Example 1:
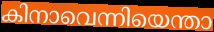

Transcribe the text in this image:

കിനാവെന്നിയെന്താ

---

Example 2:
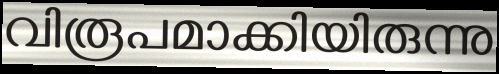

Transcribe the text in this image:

വിരൂപമാക്കിയിരുന്നു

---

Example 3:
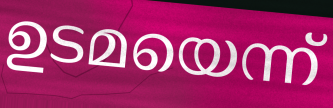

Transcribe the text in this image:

ഉടമയെന്ന്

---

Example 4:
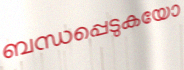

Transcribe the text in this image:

ബന്ധപ്പെടുകയോ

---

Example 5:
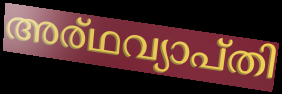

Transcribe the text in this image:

അര്ഥവ്യാപ്തി